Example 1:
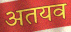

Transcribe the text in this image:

अतयव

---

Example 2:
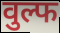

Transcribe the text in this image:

वुल्फ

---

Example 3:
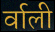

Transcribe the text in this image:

र्वाली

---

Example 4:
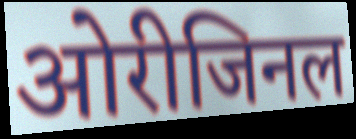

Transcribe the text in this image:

ओरीजिनल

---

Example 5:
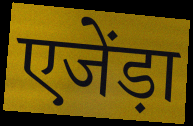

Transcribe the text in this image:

एजेंड़ा